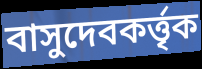
বাসুদেবকর্ত্তৃক